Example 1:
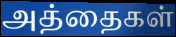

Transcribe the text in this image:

அத்தைகள்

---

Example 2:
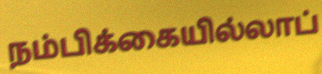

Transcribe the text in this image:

நம்பிக்கையில்லாப்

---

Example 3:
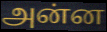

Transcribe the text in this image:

அன்ன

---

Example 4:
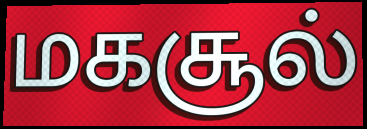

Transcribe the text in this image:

மகசூல்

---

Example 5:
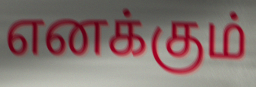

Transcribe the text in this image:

எனக்கும்